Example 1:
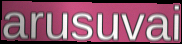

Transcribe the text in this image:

arusuvai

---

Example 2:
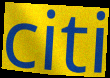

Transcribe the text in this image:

citi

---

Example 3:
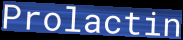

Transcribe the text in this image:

Prolactin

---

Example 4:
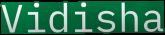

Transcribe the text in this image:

Vidisha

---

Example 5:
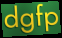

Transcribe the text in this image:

dgfp